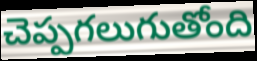
చెప్పగలుగుతోంది